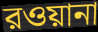
রওয়ানা